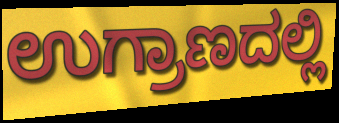
ಉಗ್ರಾಣದಲ್ಲಿ